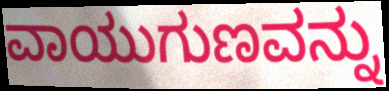
ವಾಯುಗುಣವನ್ನು